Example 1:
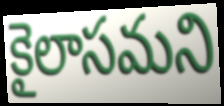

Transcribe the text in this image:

కైలాసమని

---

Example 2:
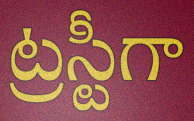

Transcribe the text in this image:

ట్రస్టీగా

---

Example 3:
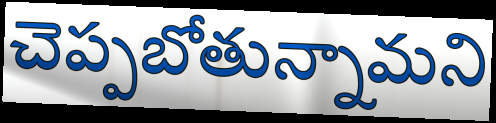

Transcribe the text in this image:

చెప్పబోతున్నామని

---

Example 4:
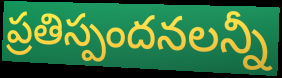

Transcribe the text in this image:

ప్రతిస్పందనలన్నీ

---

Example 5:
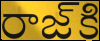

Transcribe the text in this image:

రాజ్‌కి